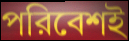
পরিবেশই